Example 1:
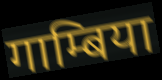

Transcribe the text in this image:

गाम्बिया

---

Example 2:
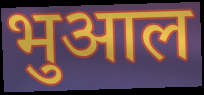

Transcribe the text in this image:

भुआल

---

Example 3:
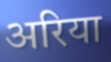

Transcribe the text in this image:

अरिया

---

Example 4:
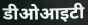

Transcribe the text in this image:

डीओआइटी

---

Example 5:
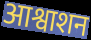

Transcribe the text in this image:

आश्वाशन